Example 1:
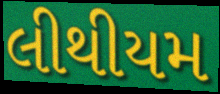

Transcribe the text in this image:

લીથીયમ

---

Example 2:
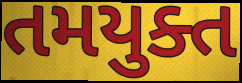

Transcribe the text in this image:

તમયુક્ત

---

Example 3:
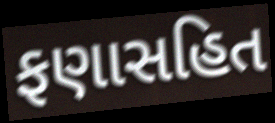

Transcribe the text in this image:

ફણાસહિત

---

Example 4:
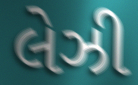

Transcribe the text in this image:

લેઝી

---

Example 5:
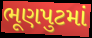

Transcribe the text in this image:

ભૂણપુટમાં